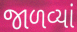
જાળવ્યાં